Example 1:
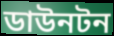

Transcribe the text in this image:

ডাউনটন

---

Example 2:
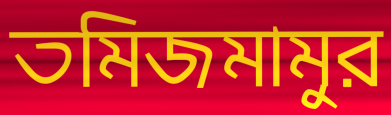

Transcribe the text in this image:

তমিজমামুর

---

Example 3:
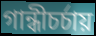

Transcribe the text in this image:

গান্ধীচর্চায়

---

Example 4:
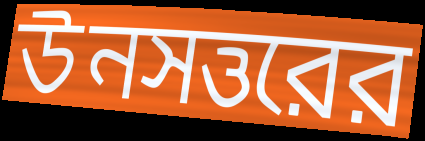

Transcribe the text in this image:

উনসত্তরের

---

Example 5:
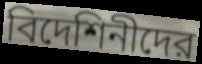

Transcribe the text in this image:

বিদেশিনীদের